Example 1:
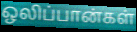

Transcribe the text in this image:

ஒலிப்பான்கள்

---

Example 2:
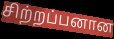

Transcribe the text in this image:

சிற்றப்பனான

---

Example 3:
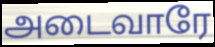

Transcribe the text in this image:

அடைவாரே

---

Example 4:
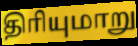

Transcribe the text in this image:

திரியுமாறு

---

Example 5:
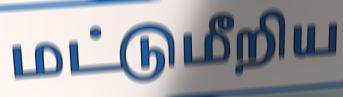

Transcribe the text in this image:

மட்டுமீறிய